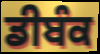
ਡੀਬੰਕ